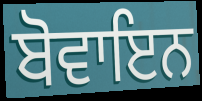
ਬੋਵਾਇਨ